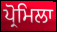
ਪ੍ਰੋਮਿਲਾ